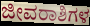
ಜೀವರಾಶಿಗಳ